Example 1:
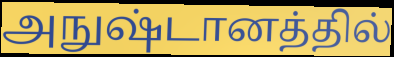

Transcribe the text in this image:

அநுஷ்டானத்தில்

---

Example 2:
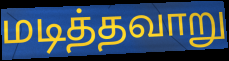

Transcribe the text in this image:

மடித்தவாறு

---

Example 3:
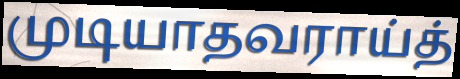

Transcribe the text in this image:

முடியாதவராய்த்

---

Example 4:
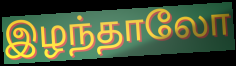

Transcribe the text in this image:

இழந்தாலோ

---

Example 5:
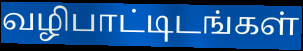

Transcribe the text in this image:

வழிபாட்டிடங்கள்